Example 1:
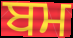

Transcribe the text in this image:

ਬਮ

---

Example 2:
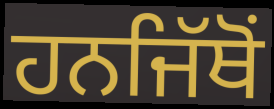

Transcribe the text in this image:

ਹਨਜਿੱਥੋਂ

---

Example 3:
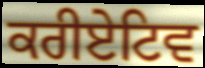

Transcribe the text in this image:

ਕਰੀਏਟਿਵ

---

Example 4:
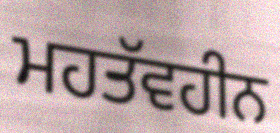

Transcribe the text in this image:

ਮਹਤੱਵਹੀਨ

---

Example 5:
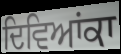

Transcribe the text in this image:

ਦਿਵਿਆਂਕਾ